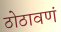
ठोठावणं